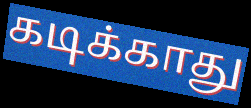
கடிக்காது